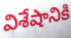
విశేషానికి